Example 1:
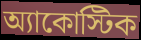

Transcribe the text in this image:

অ্যাকোস্টিক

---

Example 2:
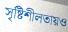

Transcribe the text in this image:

সৃষ্টিশীলতায়ও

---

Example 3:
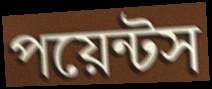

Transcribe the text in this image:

পয়েন্টস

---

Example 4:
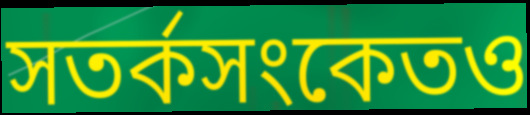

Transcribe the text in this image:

সতর্কসংকেতও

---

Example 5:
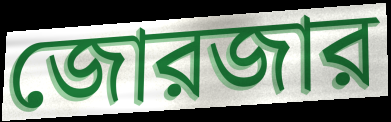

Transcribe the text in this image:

জোরজার